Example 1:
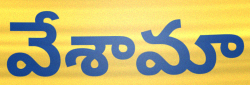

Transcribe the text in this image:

వేశామా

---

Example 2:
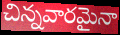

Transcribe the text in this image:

చిన్నవారమైనా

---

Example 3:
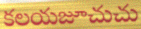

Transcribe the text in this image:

కలయజూచుచు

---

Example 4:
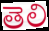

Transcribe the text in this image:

తెలి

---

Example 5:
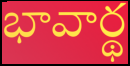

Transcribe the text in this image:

భావార్థ